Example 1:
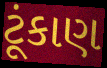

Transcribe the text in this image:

ટૂંકાણ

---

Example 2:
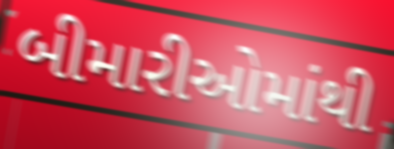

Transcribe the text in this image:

બીમારીઓમાંથી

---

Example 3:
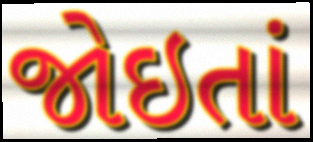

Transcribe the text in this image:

જોઇતાં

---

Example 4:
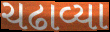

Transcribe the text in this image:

ચઢાવ્યા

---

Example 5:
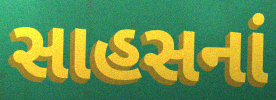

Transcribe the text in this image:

સાહસનાં